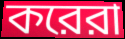
করেরা